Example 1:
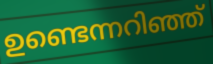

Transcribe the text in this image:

ഉണ്ടെന്നറിഞ്ഞ്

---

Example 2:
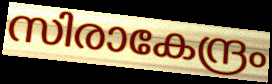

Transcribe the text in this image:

സിരാകേന്ദ്രം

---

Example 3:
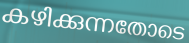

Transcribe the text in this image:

കഴിക്കുന്നതോടെ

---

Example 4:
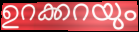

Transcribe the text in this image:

ഉറക്കറയും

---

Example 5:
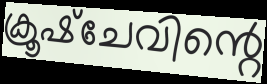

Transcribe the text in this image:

ക്രൂഷ്ചേവിന്റെ